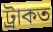
ট্ৰাকত